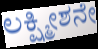
ಲಕ್ಷ್ಮೀಶನೇ